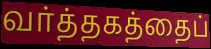
வர்த்தகத்தைப்